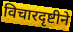
विचारदृष्टीने